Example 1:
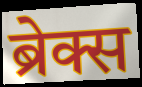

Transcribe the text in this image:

ब्रेक्स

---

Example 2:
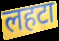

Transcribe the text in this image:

लहटा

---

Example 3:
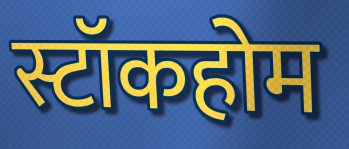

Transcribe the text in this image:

स्टॉकहोम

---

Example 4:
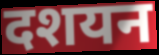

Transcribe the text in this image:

दशयन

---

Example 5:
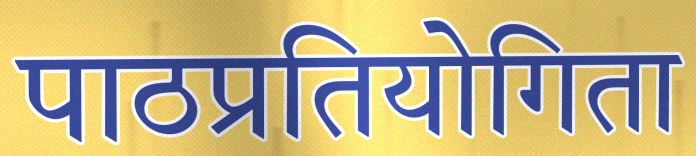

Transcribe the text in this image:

पाठप्रतियोगिता